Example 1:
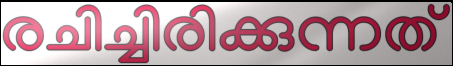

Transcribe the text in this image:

രചിച്ചിരിക്കുന്നത്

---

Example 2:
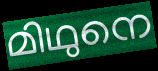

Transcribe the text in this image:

മിഥുനെ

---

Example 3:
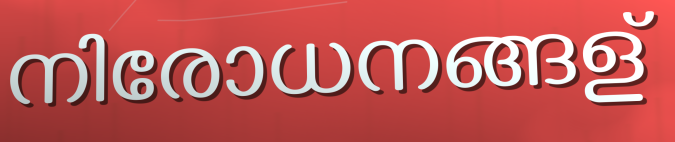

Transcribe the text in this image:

നിരോധനങ്ങള്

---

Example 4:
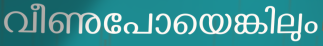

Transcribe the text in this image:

വീണുപോയെങ്കിലും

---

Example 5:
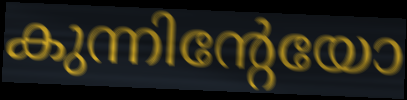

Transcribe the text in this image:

കുന്നിന്റേയോ